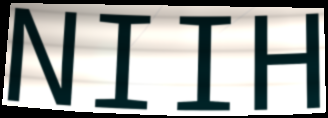
NIIH